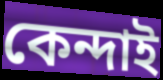
কেন্দাই